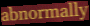
abnormally